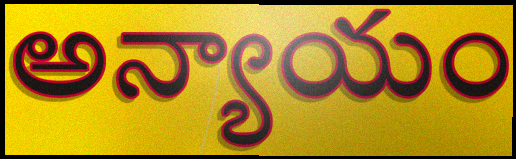
అన్యాయం